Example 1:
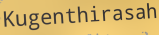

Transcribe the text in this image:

Kugenthirasah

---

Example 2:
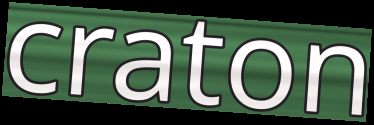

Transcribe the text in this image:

craton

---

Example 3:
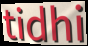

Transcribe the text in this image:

tidhi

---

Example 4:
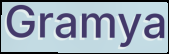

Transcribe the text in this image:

Gramya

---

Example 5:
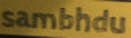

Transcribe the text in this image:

sambhdu